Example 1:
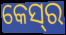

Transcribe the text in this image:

କେସ୍‌ର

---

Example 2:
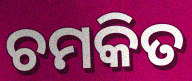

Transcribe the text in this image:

ଚମକିତ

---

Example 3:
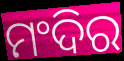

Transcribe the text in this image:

ମଂଦିର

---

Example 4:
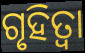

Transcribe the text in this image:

ଗୃହିତ୍ବା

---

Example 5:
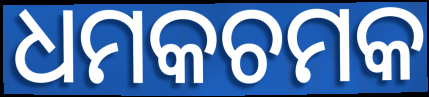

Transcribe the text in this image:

ଧମକଚମକ